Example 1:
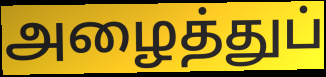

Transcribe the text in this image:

அழைத்துப்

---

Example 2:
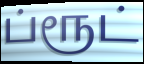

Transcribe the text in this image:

ப்ரூட்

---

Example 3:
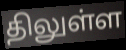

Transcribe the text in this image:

திலுள்ள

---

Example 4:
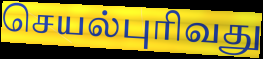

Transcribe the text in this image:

செயல்புரிவது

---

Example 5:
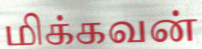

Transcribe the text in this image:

மிக்கவன்